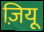
ज़ियू